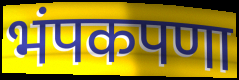
भंपकपणा